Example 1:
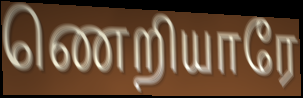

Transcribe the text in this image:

ணெறியாரே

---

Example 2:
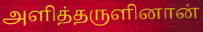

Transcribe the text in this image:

அளித்தருளினான்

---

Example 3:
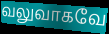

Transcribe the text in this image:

வலுவாகவே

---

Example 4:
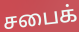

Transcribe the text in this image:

சபைக்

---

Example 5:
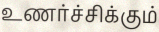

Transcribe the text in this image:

உணர்ச்சிக்கும்